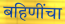
बहिणींचा